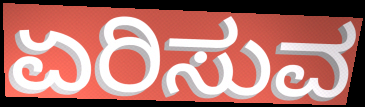
ಏರಿಸುವ